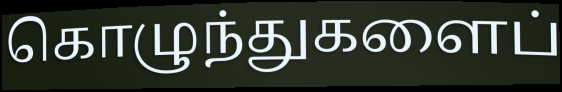
கொழுந்துகளைப்